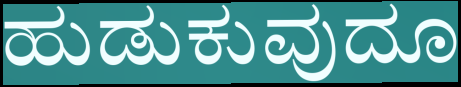
ಹುಡುಕುವುದೂ